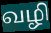
வழி